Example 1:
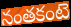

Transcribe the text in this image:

నంతకంటె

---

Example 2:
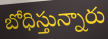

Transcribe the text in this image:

బోధిస్తున్నారు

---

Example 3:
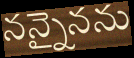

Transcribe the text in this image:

నన్నైనను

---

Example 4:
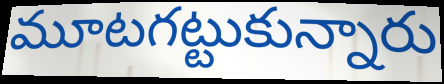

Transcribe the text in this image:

మూటగట్టుకున్నారు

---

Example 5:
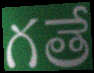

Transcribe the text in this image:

గతే